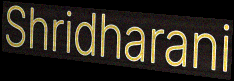
Shridharani